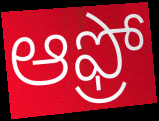
ఆఫ్రో